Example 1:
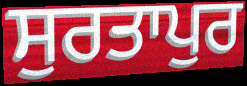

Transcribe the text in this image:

ਸੁਰਤਾਪੁਰ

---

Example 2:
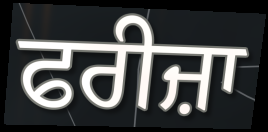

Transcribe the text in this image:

ਫਰੀਜ਼ਾ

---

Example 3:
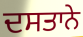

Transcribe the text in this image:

ਦਸਤਾਨੇ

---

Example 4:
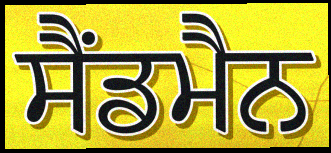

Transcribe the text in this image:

ਸੈਂਡਮੈਨ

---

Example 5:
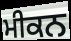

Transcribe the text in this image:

ਮੀਕਨ